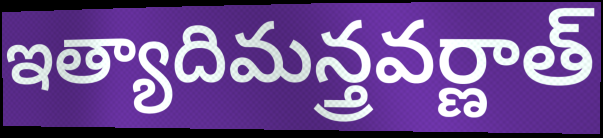
ఇత్యాదిమన్త్రవర్ణాత్